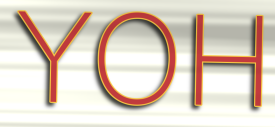
YOH